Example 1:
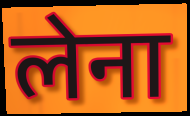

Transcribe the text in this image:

लेना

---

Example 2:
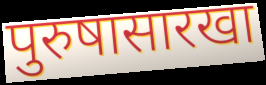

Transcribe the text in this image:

पुरुषासारखा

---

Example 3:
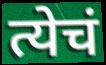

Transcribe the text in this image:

त्येचं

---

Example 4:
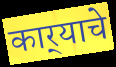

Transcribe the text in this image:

कार्याचे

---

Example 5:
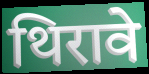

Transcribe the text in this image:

थिरावे